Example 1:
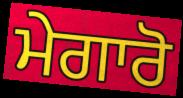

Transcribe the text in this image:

ਮੇਗਾਰੋ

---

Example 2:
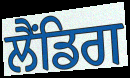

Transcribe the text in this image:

ਲੈਂਡਿਗ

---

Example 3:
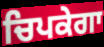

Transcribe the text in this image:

ਚਿਪਕੇਗਾ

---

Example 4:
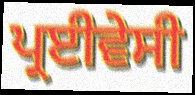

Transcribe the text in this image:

ਪ੍ਰਈਵੇਸੀ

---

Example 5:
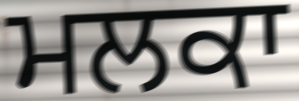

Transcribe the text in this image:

ਮਲਕਾ